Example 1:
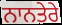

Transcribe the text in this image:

ਨਾਨਤੇਰੇ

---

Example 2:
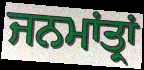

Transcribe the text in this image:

ਜਨਮਾਂਤ੍ਰਾਂ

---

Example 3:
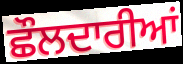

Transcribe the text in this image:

ਛੌਲਦਾਰੀਆਂ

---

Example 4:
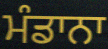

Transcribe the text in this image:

ਮੰਡਾਨਾ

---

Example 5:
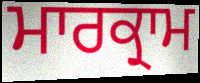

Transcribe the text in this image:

ਮਾਰਕ੍ਰਾਮ